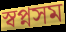
স্বপ্নসম